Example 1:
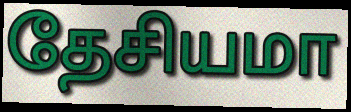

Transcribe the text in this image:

தேசியமா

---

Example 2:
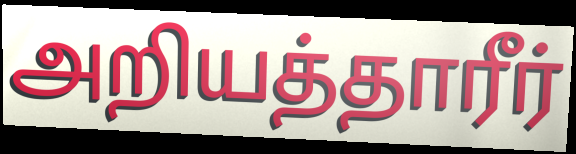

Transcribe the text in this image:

அறியத்தாரீர்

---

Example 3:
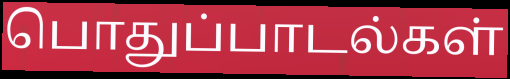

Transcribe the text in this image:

பொதுப்பாடல்கள்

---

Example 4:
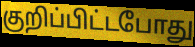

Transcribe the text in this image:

குறிப்பிட்டபோது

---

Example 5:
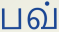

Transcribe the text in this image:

பவ்